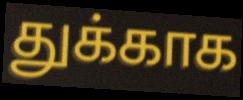
துக்காக